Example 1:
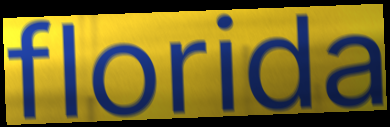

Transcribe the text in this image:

florida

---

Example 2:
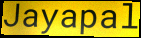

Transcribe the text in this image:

Jayapal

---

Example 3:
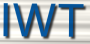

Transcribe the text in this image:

IWT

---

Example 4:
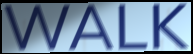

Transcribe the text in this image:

WALK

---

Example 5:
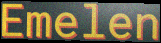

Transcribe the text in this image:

Emelen